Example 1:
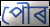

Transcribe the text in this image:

পৌৰ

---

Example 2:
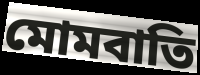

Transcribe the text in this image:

মোমবাতি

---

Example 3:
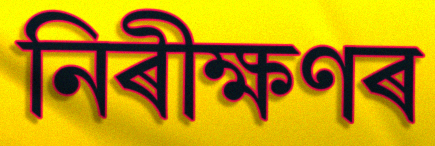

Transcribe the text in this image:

নিৰীক্ষণৰ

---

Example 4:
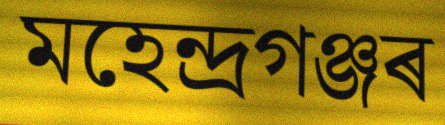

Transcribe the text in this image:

মহেন্দ্ৰগঞ্জৰ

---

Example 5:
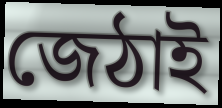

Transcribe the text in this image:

জেঠাই